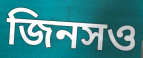
জিনসও